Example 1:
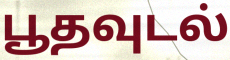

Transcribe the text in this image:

பூதவுடல்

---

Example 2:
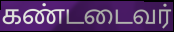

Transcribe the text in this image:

கண்டடைவர்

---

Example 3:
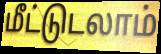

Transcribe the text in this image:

மீட்டுடலாம்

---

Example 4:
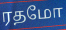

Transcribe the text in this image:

ரதமோ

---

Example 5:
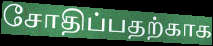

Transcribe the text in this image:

சோதிப்பதற்காக